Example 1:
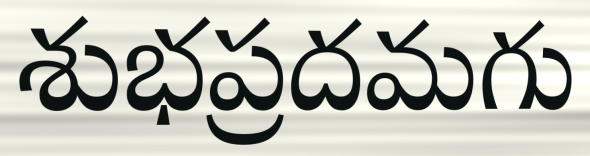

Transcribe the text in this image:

శుభప్రదమగు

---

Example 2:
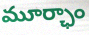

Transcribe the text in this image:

మూర్ఛాం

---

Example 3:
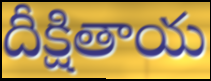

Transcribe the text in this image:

దీక్షితాయ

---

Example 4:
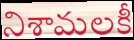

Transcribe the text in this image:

నిశామలకీ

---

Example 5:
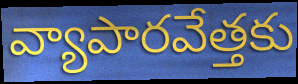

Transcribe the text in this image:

వ్యాపారవేత్తకు